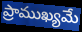
ప్రాముఖ్యమే